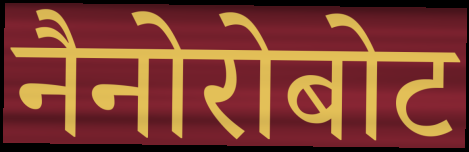
नैनोरोबोट